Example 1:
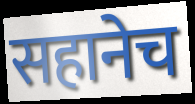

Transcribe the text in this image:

सहानेच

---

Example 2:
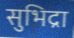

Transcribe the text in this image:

सुभिद्रा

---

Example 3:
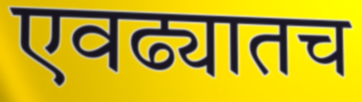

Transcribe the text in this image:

एवढ्यातच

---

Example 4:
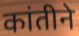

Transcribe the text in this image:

कांतीने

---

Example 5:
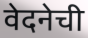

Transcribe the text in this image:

वेदनेची